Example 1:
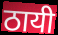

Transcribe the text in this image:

ठायी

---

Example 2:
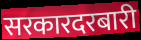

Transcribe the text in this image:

सरकारदरबारी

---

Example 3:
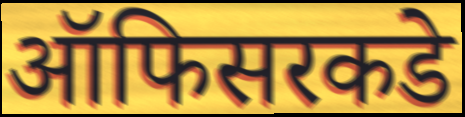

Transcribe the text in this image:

ऑफिसरकडे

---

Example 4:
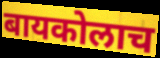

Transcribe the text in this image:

बायकोलाच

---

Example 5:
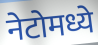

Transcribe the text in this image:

नेटोमध्ये